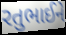
રતુભાઈને